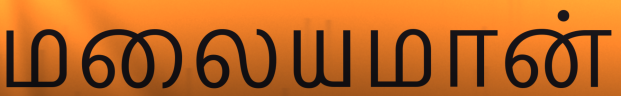
மலையமான்